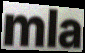
mla